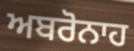
ਅਬਰੋਨਾਹ